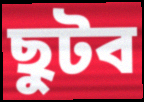
ছুটব